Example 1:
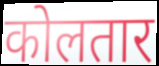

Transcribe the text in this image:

कोलतार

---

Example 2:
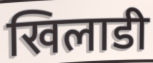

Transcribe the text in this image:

खिलाडी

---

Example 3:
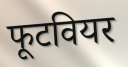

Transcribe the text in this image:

फूटवियर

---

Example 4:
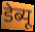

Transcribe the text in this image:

डेब्यू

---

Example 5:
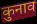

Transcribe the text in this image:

कुनाव